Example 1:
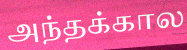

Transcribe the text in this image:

அந்தக்கால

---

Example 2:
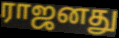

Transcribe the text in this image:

ராஜனது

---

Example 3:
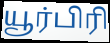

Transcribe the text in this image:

யூர்பிரி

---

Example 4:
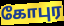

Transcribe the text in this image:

கோபுர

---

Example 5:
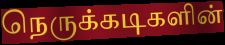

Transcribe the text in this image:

நெருக்கடிகளின்